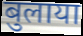
बुलाया